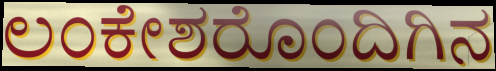
ಲಂಕೇಶರೊಂದಿಗಿನ